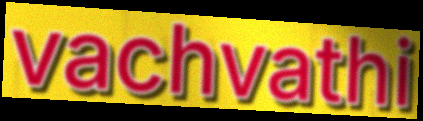
vachvathi